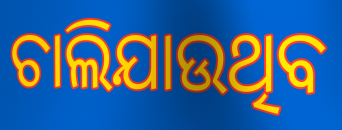
ଚାଲିଯାଉଥିବ